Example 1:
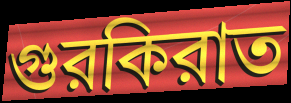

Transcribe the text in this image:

গুরকিরাত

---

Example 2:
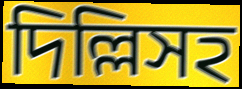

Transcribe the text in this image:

দিল্লিসহ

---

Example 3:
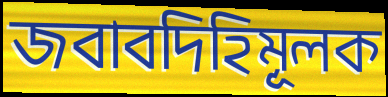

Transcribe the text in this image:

জবাবদিহিমূলক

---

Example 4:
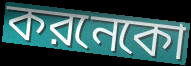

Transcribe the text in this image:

করনেকো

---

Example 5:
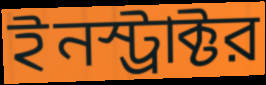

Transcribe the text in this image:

ইনস্ট্রাক্টর